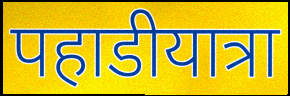
पहाडीयात्रा